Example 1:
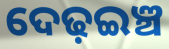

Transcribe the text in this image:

ଦେଢ଼ଇଞ୍ଚ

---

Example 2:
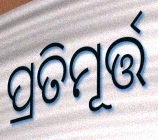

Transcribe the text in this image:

ପ୍ରତିମୂର୍ତ୍ତ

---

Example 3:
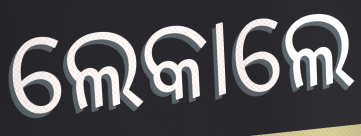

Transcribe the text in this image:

ଲେକାଲେ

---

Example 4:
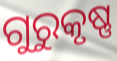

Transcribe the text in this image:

ଗୁରୁକୃଷ୍ଣ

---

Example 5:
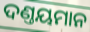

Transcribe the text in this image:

ଦଣ୍ତୟମାନ